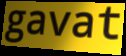
gavat